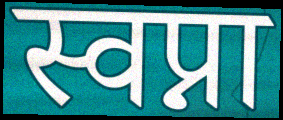
स्वप्ना